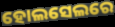
ହୋଲସେଲରେ